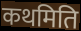
कथमिति